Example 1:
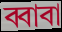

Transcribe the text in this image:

ব্বাবা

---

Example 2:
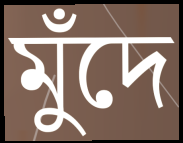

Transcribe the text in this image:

মুঁদে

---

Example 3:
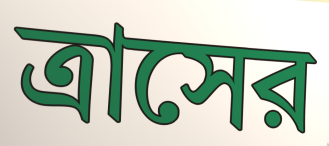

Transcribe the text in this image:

ত্রাসের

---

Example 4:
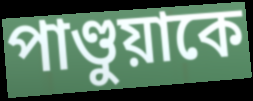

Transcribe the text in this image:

পাণ্ডুয়াকে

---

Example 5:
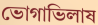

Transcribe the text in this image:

ভোগাভিলাষ